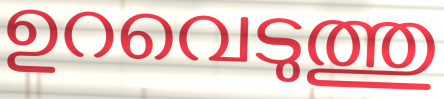
ഉറവെടുത്തു